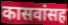
कासवांसह